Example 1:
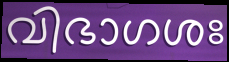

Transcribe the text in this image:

വിഭാഗശഃ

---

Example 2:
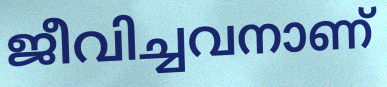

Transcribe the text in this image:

ജീവിച്ചവനാണ്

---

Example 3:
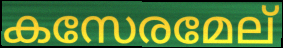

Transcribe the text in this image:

കസേരമേല്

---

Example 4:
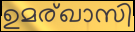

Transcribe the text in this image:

ഉമര്ഖാസി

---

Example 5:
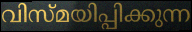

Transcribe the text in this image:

വിസ്മയിപ്പിക്കുന്ന